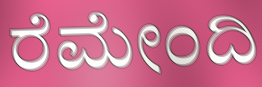
ರೆಮೇಂದಿ